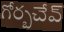
గోర్బచేవ్